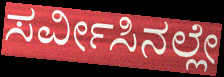
ಸರ್ವೀಸಿನಲ್ಲೇ